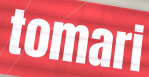
tomari